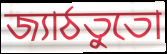
জ্যাঠতুতো